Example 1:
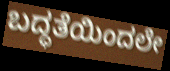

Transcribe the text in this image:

ಬದ್ಧತೆಯಿಂದಲೇ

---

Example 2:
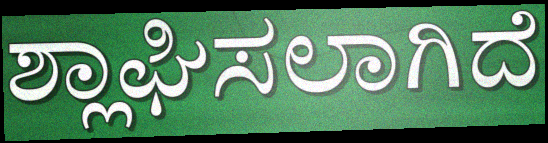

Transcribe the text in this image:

ಶ್ಲಾಘಿಸಲಾಗಿದೆ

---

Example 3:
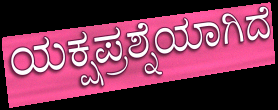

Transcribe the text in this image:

ಯಕ್ಷಪ್ರಶ್ನೆಯಾಗಿದೆ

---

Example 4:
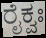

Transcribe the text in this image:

ರೈಕ್ವಃ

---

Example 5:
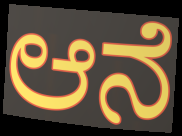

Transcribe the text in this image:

ಆನೆ